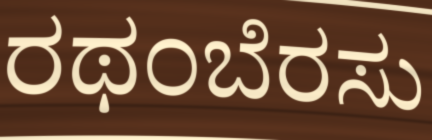
ರಥಂಬೆರಸು